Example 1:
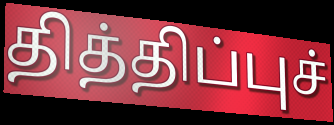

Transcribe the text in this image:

தித்திப்புச்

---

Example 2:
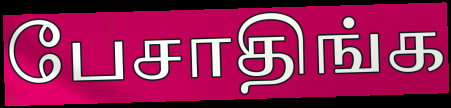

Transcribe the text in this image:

பேசாதிங்க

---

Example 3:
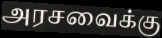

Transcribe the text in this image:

அரசவைக்கு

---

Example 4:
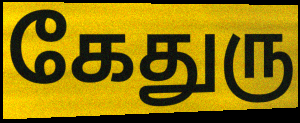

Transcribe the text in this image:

கேதுரு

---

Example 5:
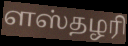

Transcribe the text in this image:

ளஸ்தழரி